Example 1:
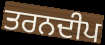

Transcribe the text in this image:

ਤਰਨਦੀਪ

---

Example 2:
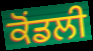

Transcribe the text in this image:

ਕੋਂਡਲੀ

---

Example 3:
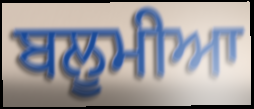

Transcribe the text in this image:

ਬਲੂਮੀਆ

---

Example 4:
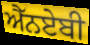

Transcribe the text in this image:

ਐੱਨਏਬੀ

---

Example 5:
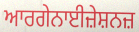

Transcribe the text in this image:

ਆਰਗੇਨਾਈਜ਼ੇਸ਼ਨਜ਼